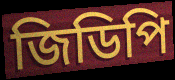
জিডিপি